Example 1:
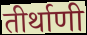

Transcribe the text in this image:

तीर्थाणी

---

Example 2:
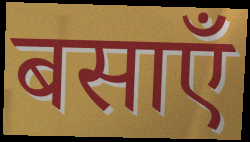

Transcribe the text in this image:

बसाएँ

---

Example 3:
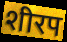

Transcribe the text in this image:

शीरप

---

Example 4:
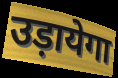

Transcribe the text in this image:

उड़ायेगा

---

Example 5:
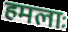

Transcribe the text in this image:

हमलाः